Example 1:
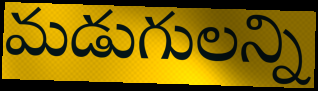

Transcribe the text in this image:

మడుగులన్ని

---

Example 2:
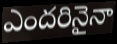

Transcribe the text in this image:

ఎందరినైనా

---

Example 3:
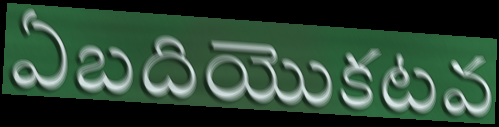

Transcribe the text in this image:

ఏబదియొకటవ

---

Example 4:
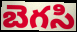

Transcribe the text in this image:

బెగసి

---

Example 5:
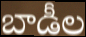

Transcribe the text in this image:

బాడీల